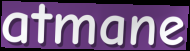
atmane